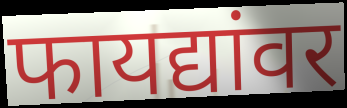
फायद्यांवर